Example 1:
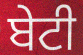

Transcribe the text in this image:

ਬੇਟੀ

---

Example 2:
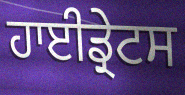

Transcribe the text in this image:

ਹਾਈਡ੍ਰੇਟਸ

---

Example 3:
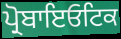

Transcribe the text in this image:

ਪ੍ਰੋਬਾਇਓਟਿਕ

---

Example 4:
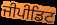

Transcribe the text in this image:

ਜੀਪੀਡਿਟ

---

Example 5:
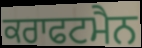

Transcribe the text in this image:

ਕਰਾਫਟਮੈਨ